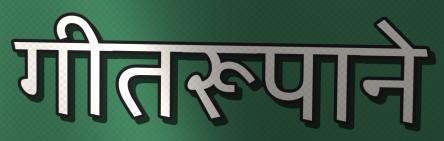
गीतरूपाने